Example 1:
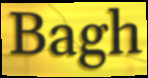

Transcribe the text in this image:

Bagh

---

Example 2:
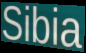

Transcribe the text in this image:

Sibia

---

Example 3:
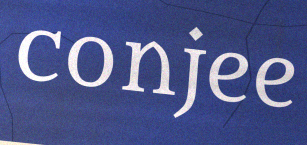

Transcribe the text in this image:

conjee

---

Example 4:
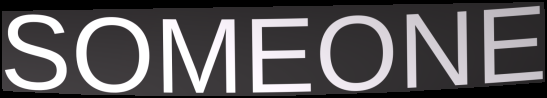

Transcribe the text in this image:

SOMEONE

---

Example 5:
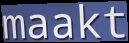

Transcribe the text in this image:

maakt